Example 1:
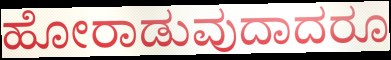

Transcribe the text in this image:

ಹೋರಾಡುವುದಾದರೂ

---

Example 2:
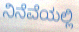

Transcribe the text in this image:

ನಿನೆವೆಯಲ್ಲಿ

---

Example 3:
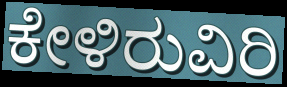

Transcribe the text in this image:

ಕೇಳಿರುವಿರಿ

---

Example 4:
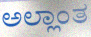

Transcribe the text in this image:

ಅಲ್ಲಾಂತ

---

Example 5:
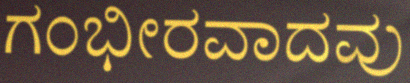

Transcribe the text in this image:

ಗಂಭೀರವಾದವು